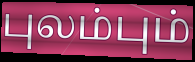
புலம்பும்